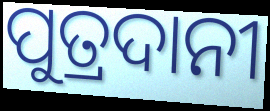
ପୁତ୍ରଦାନୀ